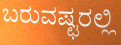
ಬರುವಷ್ಟರಲ್ಲಿ